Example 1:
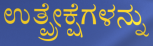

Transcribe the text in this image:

ಉತ್ಪ್ರೇಕ್ಷೆಗಳನ್ನು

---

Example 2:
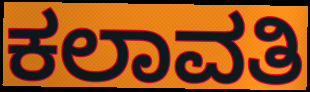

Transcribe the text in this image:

ಕಲಾವತಿ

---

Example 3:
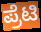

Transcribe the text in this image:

ಪ್ರೆಟಿ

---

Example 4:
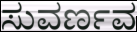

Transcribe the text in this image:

ಸುವರ್ಣವ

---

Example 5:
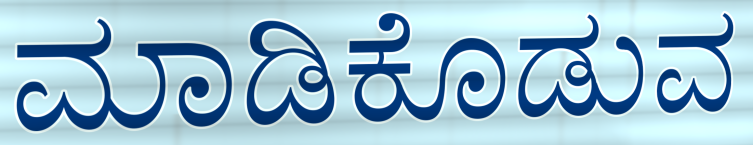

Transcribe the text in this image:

ಮಾಡಿಕೊಡುವ